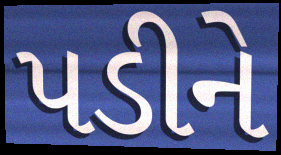
પડીને